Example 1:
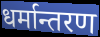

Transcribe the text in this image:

धर्मान्तरण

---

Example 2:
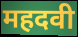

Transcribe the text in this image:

महदवी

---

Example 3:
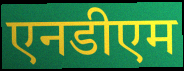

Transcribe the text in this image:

एनडीएम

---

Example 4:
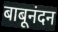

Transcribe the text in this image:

बाबूनंदन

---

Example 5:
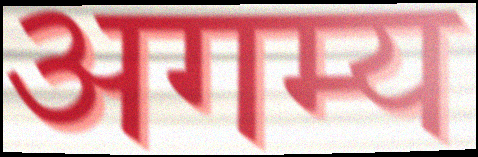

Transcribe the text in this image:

अगम्य